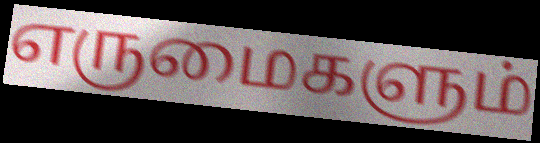
எருமைகளும்